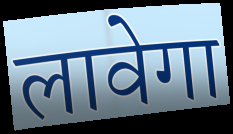
लावेगा